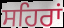
ਸਹਿਰਾਂ